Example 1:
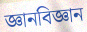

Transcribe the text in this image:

জ্ঞানবিজ্ঞান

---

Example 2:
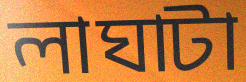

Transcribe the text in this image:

লাঘাটা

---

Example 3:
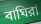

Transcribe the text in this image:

বাঘিরা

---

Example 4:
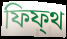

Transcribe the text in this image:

ফিফ্থ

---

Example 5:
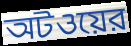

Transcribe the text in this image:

অটওয়ের